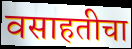
वसाहतीचा